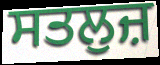
ਸਤਲੁਜ਼